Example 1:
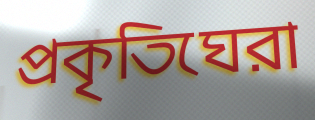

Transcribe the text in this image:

প্রকৃতিঘেরা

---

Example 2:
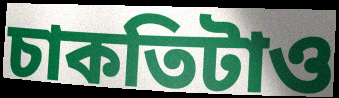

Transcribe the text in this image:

চাকতিটাও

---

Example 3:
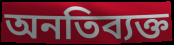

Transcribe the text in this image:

অনতিব্যক্ত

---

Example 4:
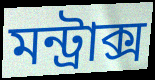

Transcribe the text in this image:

মন্ট্রাক্স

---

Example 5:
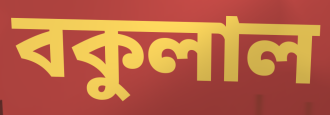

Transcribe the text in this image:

বকুলাল